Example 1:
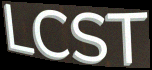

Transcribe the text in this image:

LCST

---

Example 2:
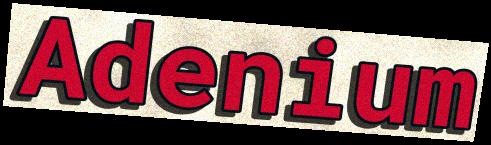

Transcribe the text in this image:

Adenium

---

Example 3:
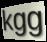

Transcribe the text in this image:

kgg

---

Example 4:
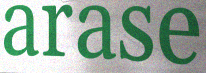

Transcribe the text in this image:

arase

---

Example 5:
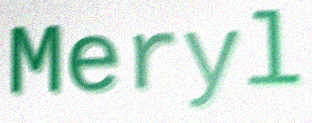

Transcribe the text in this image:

Meryl